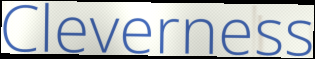
Cleverness